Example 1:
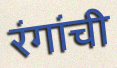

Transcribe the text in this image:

रंगांची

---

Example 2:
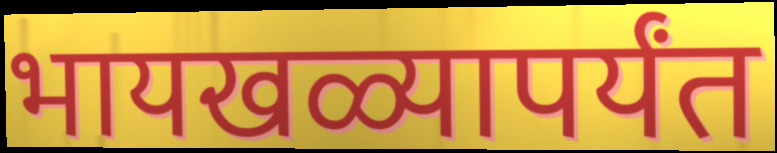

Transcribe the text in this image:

भायखळ्यापर्यंत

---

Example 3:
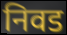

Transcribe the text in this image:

निवड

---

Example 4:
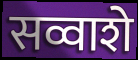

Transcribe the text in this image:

सव्वाशे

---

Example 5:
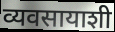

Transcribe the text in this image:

व्यवसायाशी